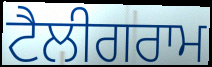
ਟੈਲੀਗਰਾਮ